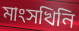
মাংসখিনি